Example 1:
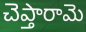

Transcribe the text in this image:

చెప్తారామె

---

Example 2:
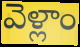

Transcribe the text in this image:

వెళ్లాం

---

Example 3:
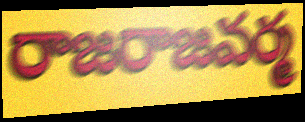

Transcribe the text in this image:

రాజరాజవర్మ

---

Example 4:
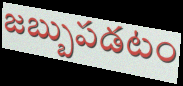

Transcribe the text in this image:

జబ్బుపడటం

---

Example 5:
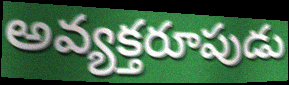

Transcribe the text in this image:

అవ్యక్తరూపుడు